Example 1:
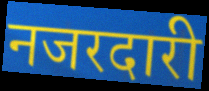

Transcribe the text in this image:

नजरदारी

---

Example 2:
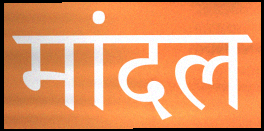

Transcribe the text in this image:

मांदल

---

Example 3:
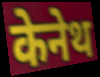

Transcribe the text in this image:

केनेथ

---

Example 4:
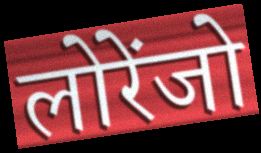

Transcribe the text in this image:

लोरेंजो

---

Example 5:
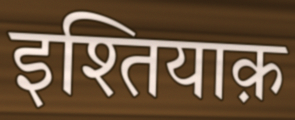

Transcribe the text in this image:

इश्तियाक़